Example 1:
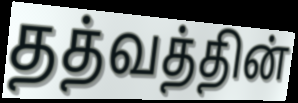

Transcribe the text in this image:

தத்வத்தின்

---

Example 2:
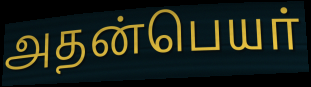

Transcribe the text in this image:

அதன்பெயர்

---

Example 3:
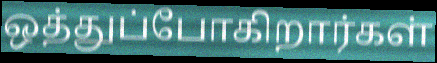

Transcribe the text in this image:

ஒத்துப்போகிறார்கள்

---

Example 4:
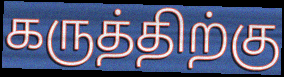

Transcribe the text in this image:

கருத்திற்கு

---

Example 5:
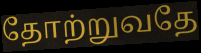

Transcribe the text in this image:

தோற்றுவதே